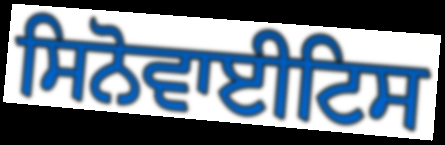
ਸਿਨੋਵਾਈਟਿਸ